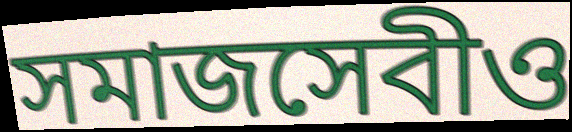
সমাজসেবীও